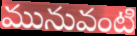
మునువంటి